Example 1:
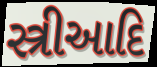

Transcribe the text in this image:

સ્ત્રીઆદિ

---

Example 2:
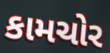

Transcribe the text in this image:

કામચોર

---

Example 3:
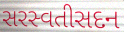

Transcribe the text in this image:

સરસ્વતીસદન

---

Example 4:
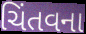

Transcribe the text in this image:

ચિંતવના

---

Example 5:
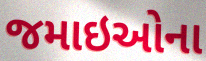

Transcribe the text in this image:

જમાઇઓના